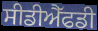
ਸੀਡੀਐੱਫਡੀ